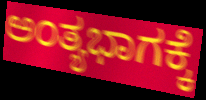
ಅಂತ್ಯಭಾಗಕ್ಕೆ